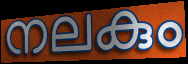
നലകും